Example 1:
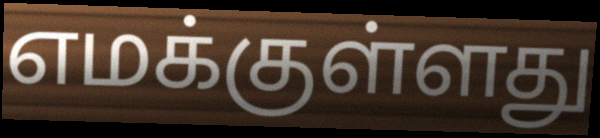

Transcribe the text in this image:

எமக்குள்ளது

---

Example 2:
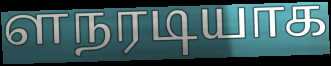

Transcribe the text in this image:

ளநரடியாக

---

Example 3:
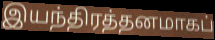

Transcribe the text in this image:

இயந்திரத்தனமாகப்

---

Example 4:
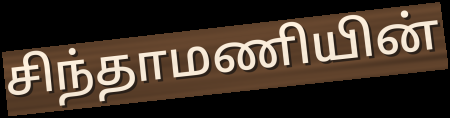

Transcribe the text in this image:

சிந்தாமணியின்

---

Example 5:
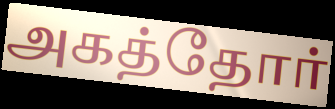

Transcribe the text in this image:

அகத்தோர்